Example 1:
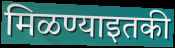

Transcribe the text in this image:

मिळण्याइतकी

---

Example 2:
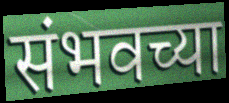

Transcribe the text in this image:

संभवच्या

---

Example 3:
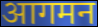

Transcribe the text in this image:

आगमन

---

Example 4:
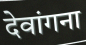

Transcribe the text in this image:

देवांगना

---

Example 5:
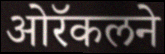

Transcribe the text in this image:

ओरॅकलने